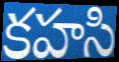
కహసి